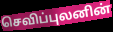
செவிப்புலனின்